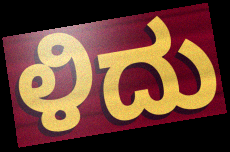
ಳಿದು